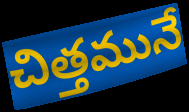
చిత్తమునే